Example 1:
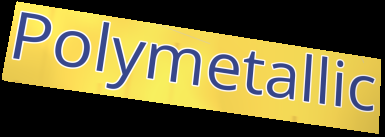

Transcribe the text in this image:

Polymetallic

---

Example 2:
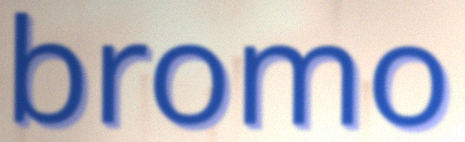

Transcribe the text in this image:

bromo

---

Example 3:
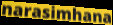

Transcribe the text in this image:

narasimhana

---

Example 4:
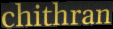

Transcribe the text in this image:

chithran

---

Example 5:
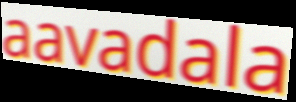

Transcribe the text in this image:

aavadala